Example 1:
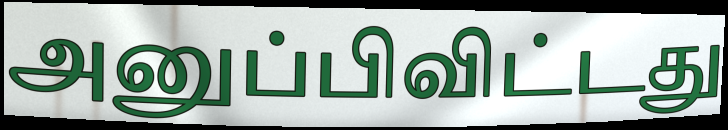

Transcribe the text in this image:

அனுப்பிவிட்டது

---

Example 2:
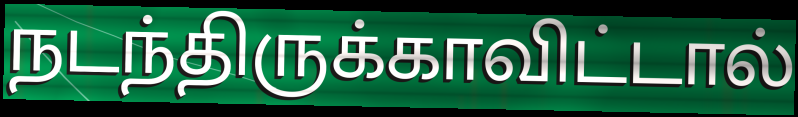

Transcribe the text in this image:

நடந்திருக்காவிட்டால்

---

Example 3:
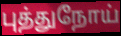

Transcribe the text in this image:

புத்துநோய்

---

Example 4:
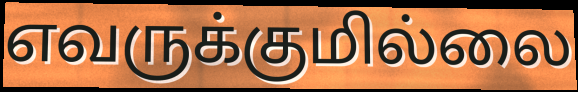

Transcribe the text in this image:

எவருக்குமில்லை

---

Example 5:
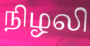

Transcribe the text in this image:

நிழலி